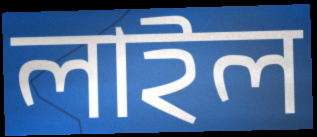
লাইল